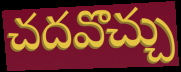
చదవొచ్చు